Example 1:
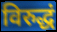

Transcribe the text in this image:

विरुद्धं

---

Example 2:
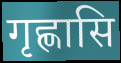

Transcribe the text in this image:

गृह्णासि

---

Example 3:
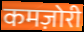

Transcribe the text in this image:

कमज़ोरी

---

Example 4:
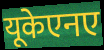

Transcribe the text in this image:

यूकेएनए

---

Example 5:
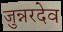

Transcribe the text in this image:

जुन्नरदेव